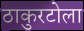
ठाकुरटोला